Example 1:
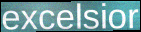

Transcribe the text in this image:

excelsior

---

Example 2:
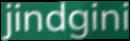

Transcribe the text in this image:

jindgini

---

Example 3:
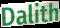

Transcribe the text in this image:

Dalith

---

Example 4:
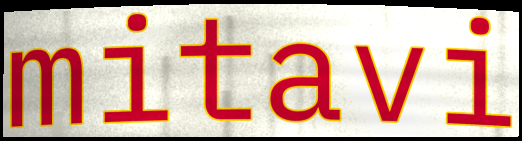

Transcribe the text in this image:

mitavi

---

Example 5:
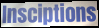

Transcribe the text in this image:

Insciptions